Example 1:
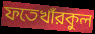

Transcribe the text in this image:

ফতেখাঁরকুল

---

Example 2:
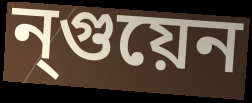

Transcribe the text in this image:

ন্গুয়েন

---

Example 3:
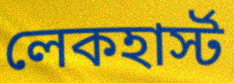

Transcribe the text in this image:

লেকহার্স্ট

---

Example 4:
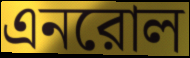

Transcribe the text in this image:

এনরোল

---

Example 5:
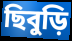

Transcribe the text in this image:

ছিবুড়ি